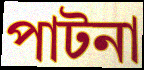
পাটনা